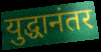
युद्धानंतर